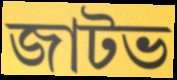
জাটভ